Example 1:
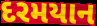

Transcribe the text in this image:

દરમયાન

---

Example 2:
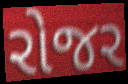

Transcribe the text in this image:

રોજર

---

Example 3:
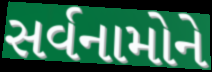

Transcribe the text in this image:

સર્વનામોને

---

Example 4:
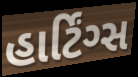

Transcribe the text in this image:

હાર્ટિંગ્સ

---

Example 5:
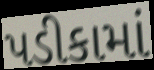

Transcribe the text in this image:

પડીકામાં